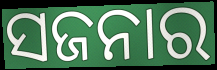
ସଜନାର